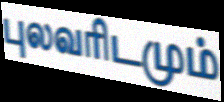
புலவரிடமும்